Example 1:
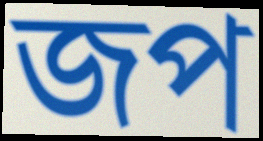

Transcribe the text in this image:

জপ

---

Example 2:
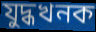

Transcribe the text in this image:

যুদ্ধখনক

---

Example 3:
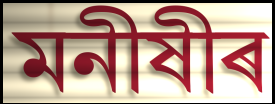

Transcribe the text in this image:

মনীষীৰ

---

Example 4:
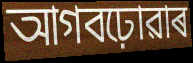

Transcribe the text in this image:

আগবঢ়োৱাৰ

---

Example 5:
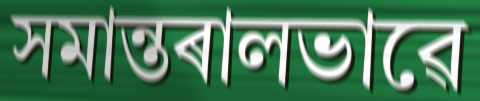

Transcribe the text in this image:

সমান্তৰালভাৱে